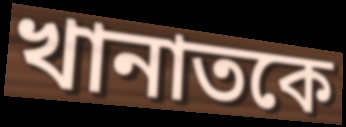
খানাতকে